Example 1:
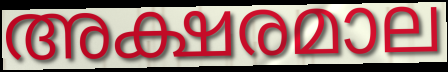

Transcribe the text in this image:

അക്ഷരമാല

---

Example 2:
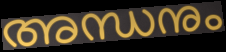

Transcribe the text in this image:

അന്ധനും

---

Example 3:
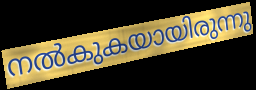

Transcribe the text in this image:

നൽകുകയായിരുന്നു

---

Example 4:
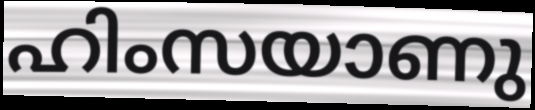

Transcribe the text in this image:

ഹിംസയാണു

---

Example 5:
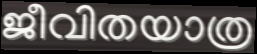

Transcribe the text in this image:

ജീവിതയാത്ര